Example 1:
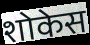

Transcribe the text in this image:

शोकेस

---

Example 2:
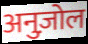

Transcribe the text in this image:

अनुज़ोल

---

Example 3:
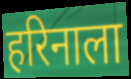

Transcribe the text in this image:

हरिनाला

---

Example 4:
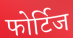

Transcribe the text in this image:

फोर्टिज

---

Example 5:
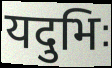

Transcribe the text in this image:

यदुभिः